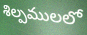
శిల్పములలో